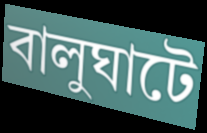
বালুঘাটে